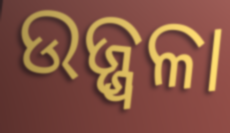
ଉଜ୍ଜ୍ୱଳା